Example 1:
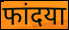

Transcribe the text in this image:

फांदया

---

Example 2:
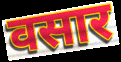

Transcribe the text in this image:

वसार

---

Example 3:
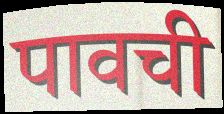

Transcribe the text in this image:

पावची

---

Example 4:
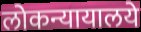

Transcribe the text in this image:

लोकन्यायालये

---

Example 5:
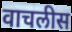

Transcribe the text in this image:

वाचलीस